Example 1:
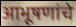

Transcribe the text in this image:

आभूषणांचे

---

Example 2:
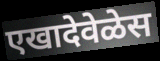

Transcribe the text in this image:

एखादेवेळेस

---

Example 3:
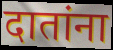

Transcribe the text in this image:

दातांना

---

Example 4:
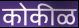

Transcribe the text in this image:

कोकीळ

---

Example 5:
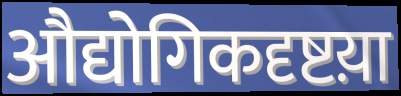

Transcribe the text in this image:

औद्योगिकदृष्टय़ा